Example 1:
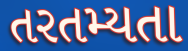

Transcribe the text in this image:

તરતમ્યતા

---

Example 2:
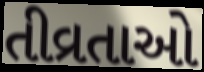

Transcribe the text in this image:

તીવ્રતાઓ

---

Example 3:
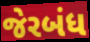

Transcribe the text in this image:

જેરબંધ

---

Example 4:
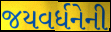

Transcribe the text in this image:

જયવર્ધનેની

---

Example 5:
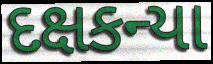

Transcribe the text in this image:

દક્ષકન્યા